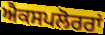
ਐਕਸਪਲੋਰਰਾਂ